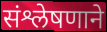
संश्लेषणाने